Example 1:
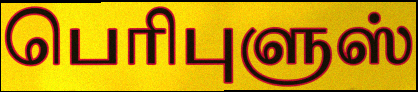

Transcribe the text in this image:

பெரிபுளுஸ்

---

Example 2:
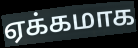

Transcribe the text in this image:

ஏக்கமாக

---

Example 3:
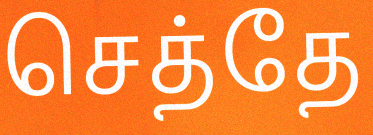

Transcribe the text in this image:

செத்தே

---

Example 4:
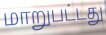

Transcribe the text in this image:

மாறுபட்டது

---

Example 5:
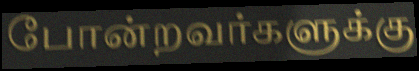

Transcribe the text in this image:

போன்றவர்களுக்கு